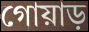
গোয়াড়